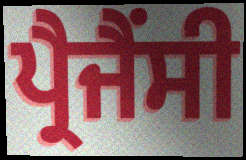
ਪ੍ਰੈਜੈਂਸੀ